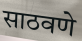
साठवणे